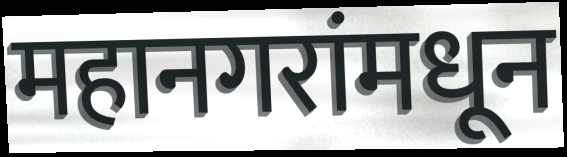
महानगरांमधून